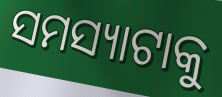
ସମସ୍ୟାଟାକୁ